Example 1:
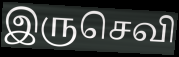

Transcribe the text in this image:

இருசெவி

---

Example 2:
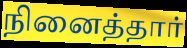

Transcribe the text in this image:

நினைத்தார்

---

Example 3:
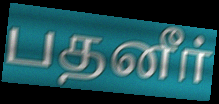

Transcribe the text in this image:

பதனீர்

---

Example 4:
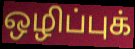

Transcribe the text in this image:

ஒழிப்புக்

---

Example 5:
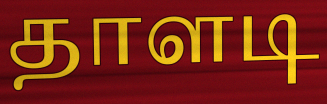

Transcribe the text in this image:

தாளடி